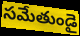
సమేతుండై